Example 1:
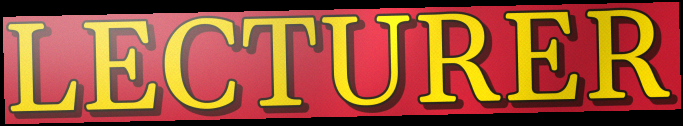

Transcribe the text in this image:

LECTURER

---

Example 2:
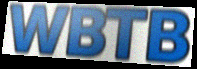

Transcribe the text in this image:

WBTB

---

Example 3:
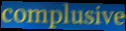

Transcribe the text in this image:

complusive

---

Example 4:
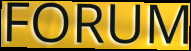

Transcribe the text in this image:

FORUM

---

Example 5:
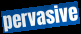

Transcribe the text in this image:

pervasive